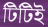
টিটিই